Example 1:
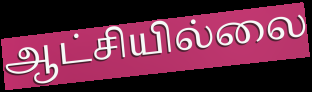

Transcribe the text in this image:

ஆட்சியில்லை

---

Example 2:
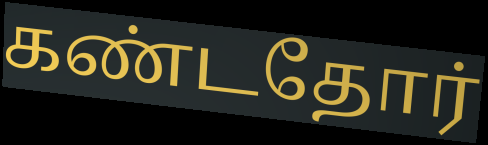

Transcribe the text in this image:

கண்டதோர்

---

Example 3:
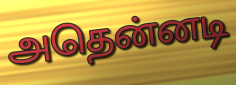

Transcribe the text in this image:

அதென்னடி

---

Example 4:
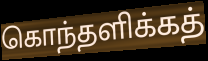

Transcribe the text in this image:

கொந்தளிக்கத்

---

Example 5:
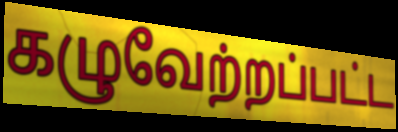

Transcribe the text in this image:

கழுவேற்றப்பட்ட